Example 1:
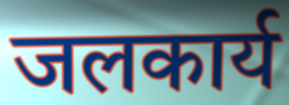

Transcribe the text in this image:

जलकार्य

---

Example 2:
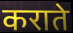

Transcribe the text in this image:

कराते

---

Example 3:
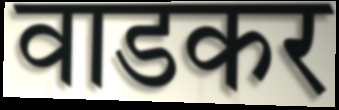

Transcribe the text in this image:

वाडकर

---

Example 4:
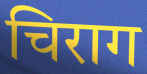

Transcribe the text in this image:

चिराग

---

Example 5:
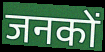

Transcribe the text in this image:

जनकों